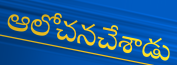
ఆలోచనచేశాడు